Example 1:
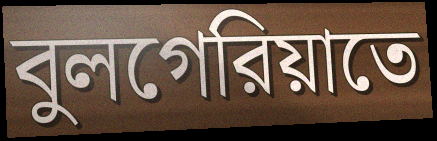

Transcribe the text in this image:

বুলগেরিয়াতে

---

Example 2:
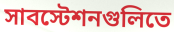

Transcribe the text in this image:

সাবস্টেশনগুলিতে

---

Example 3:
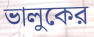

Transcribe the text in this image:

ভালুকের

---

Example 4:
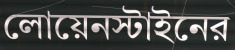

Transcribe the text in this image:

লোয়েনস্টাইনের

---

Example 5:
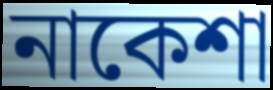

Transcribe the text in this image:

নাকেশা